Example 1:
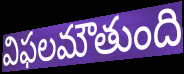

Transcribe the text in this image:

విఫలమౌతుంది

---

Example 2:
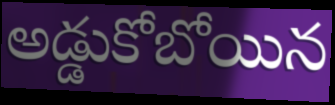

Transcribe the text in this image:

అడ్డుకోబోయిన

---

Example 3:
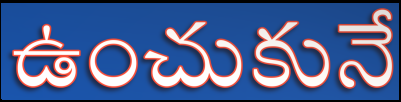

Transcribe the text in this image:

ఉంచుకునే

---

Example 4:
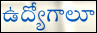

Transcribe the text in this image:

ఉద్యోగాలూ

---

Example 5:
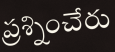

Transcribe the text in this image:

ప్రశ్నించేరు